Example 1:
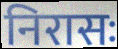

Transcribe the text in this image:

निरासः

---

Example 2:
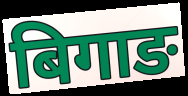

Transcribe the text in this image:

बिगाङ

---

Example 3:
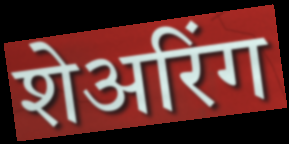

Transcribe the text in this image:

शेअरिंग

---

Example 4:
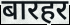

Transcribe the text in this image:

बारहर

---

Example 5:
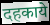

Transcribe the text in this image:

दहकाये